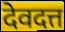
देवदत्त